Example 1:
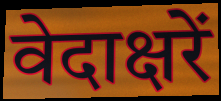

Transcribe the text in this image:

वेदाक्षरें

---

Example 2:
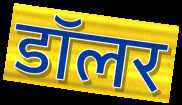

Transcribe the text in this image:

डॉलर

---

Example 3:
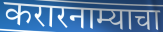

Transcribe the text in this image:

करारनाम्याचा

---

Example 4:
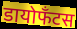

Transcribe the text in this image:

डायोफँटस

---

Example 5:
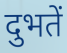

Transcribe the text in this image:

दुभतें